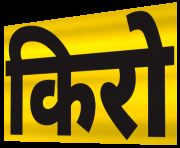
किरो